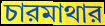
চারমাথার